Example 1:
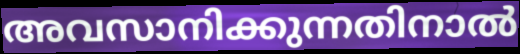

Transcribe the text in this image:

അവസാനിക്കുന്നതിനാൽ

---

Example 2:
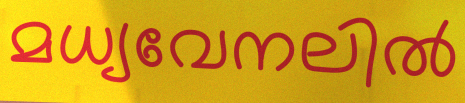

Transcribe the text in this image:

മധ്യവേനലിൽ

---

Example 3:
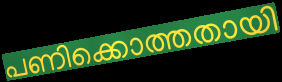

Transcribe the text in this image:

പണിക്കൊത്തതായി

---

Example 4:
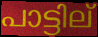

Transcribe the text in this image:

പാട്ടില്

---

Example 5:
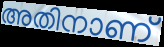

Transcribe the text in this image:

അതിനാണ്